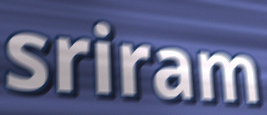
sriram